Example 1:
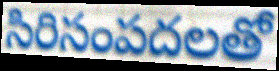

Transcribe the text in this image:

సిరిసంపదలతో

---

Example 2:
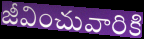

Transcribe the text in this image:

జీవించువారికి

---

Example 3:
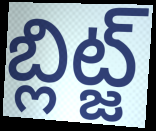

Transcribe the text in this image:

బ్లిట్జ్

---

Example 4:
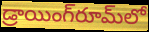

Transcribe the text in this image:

డ్రాయింగ్‌రూమ్‌లో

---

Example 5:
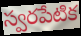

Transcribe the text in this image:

స్వరపేటిక